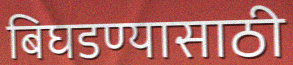
बिघडण्यासाठी